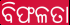
ବିଫଳତା